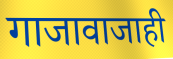
गाजावाजाही